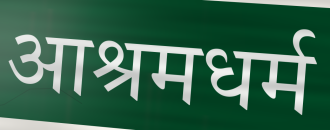
आश्रमधर्म